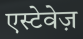
एस्टेवेज़